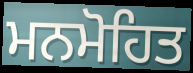
ਮਨਮੋਹਿਤ